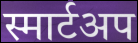
स्मार्टअप